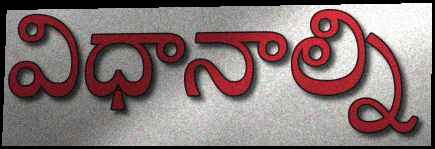
విధానాల్ని